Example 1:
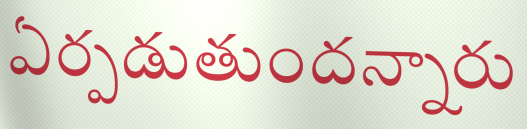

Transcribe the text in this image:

ఏర్పడుతుందన్నారు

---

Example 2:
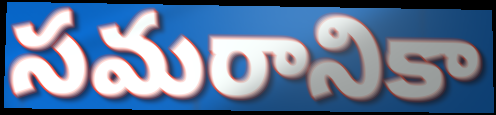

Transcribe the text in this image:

సమరానికా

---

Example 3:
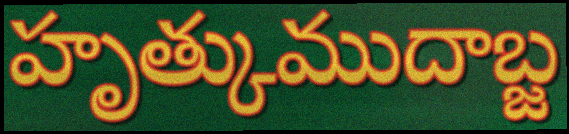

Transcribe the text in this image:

హృత్కుముదాబ్జ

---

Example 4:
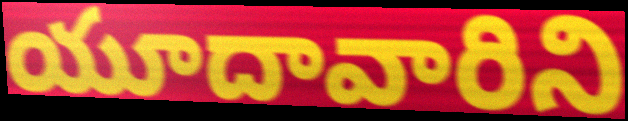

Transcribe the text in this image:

యూదావారిని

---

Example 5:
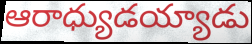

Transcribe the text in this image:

ఆరాధ్యుడయ్యాడు